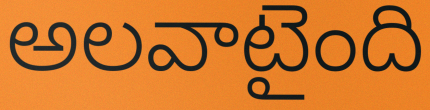
అలవాటైంది